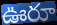
ఊరూ